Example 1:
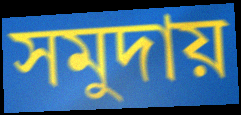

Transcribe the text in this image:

সমুদায়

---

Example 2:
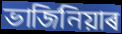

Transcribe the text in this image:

ভাৰ্জিনিয়াৰ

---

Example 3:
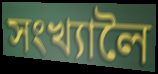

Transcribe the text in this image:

সংখ্যালৈ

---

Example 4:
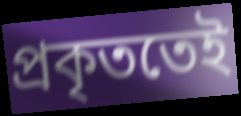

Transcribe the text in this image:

প্ৰকৃততেই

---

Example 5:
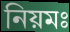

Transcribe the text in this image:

নিয়মঃ